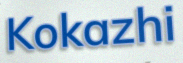
Kokazhi